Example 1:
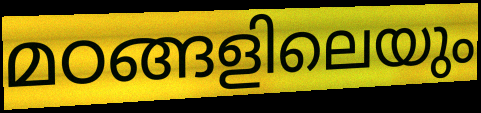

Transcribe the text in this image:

മഠങ്ങളിലെയും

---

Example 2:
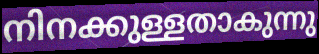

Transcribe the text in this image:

നിനക്കുള്ളതാകുന്നു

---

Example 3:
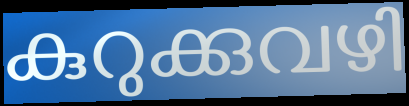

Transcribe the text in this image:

കുറുക്കുവഴി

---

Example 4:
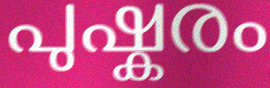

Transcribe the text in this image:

പുഷ്കരം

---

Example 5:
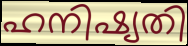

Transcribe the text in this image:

ഹനിഷ്യതി